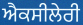
ਐਕਸੀਲੇਰੀ